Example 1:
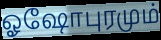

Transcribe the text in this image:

ஓஷோபுரமும்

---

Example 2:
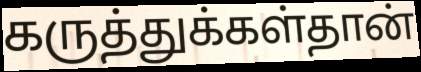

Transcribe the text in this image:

கருத்துக்கள்தான்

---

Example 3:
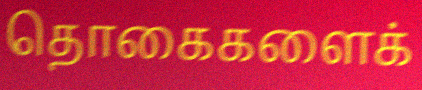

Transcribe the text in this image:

தொகைகளைக்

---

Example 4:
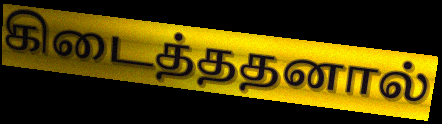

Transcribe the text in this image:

கிடைத்ததனால்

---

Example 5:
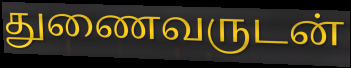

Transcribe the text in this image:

துணைவருடன்